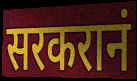
सरकरानं